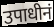
उपाधीनं